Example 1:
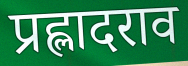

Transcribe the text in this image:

प्रह्लादराव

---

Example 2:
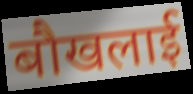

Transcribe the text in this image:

बौखलाई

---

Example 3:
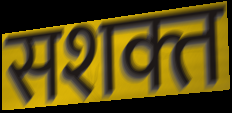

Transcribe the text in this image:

सशक्‍त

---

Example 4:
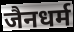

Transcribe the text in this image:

जैनधर्म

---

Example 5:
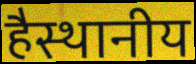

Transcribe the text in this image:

हैस्थानीय